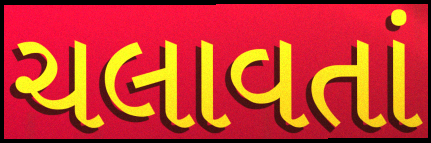
ચલાવતાં